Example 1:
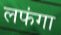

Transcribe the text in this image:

लफंगा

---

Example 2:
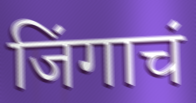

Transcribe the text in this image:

जिंगाचं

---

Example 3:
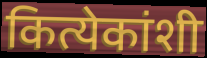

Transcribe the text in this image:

कित्येकांशी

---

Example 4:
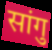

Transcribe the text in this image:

सांगु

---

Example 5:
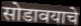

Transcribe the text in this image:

सोडावयाचे